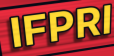
IFPRI